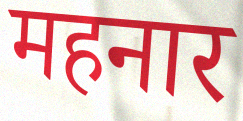
महनार